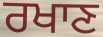
ਰਖਾਣ